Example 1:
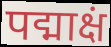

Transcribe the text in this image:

पद्माक्षं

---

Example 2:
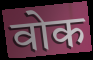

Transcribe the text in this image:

वोक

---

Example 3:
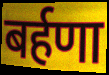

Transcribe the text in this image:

बर्हणा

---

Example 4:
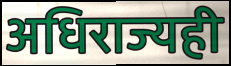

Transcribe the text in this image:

अधिराज्यही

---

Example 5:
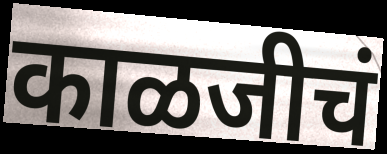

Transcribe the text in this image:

काळजीचं